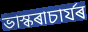
ভাস্কৰাচাৰ্যৰ